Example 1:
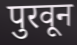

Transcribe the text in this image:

पुरवून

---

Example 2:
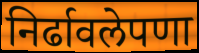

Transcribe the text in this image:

निर्ढावलेपणा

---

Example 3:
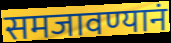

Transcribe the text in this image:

समजावण्यानं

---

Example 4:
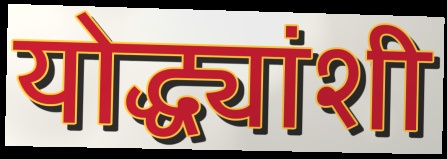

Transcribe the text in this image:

योद्ध्यांशी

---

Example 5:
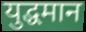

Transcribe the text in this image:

युद्धमान